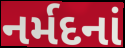
નર્મદનાં